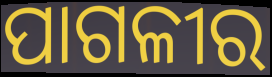
ପାଗଳୀର